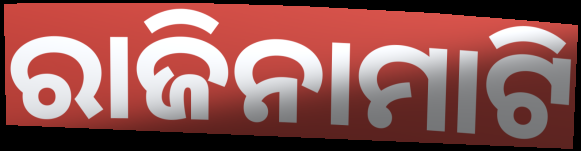
ରାଜିନାମାଟି